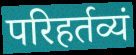
परिहर्तव्यं